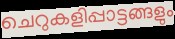
ചെറുകളിപ്പാട്ടങ്ങളും